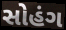
સોહંગ